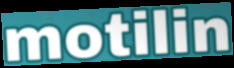
motilin